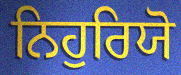
ਨਿਹੁਰਿਯੋ